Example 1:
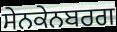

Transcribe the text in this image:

ਸੇਨਕੇਨਬਰਗ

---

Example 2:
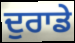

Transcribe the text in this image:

ਦੁਰਾਡੇ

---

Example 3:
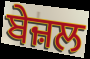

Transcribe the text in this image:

ਬੇਜ਼ਲ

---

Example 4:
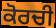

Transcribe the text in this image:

ਕੋਰਚੀ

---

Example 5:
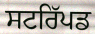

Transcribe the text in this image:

ਸਟਰਿੱਪਡ